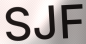
SJF